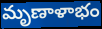
మృణాళాభం